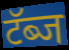
टॅब्ज